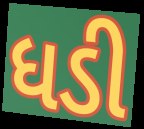
ધડી